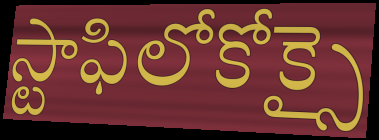
స్టాఫిలోకోక్సై